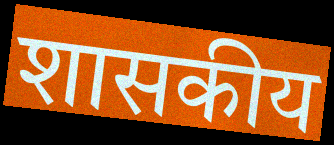
शासकीय